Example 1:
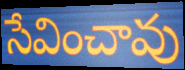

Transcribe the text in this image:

సేవించావు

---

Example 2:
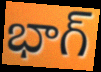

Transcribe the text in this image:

భాగ్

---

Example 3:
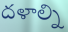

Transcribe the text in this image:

దళాల్ని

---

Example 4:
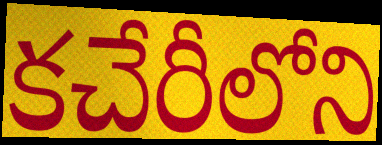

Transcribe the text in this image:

కచేరీలోని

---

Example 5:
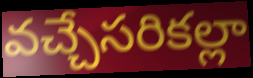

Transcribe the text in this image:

వచ్చేసరికల్లా